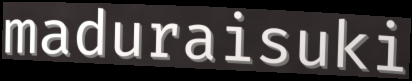
maduraisuki